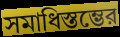
সমাধিস্তম্ভের